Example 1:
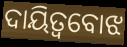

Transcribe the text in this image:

ଦାୟିତ୍ୱବୋଝ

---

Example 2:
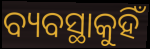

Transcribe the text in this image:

ବ୍ୟବସ୍ଥାକୁହିଁ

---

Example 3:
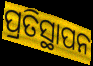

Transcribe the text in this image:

ପ୍ରତିସ୍ଥାପନ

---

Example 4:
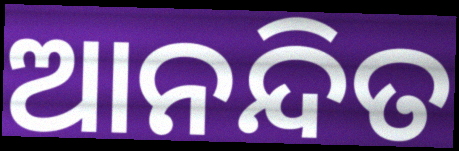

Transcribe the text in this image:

ଆନନ୍ଦିତ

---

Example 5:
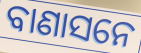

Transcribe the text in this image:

ବାଣାସନେ